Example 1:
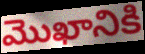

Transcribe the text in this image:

మొఖానికి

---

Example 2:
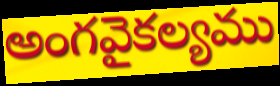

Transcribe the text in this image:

అంగవైకల్యము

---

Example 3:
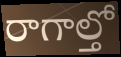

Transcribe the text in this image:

రాగాల్తో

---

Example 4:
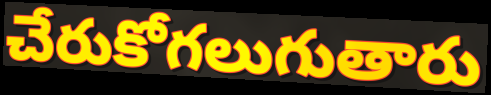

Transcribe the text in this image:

చేరుకోగలుగుతారు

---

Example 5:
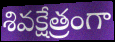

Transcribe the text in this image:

శివక్షేత్రంగా